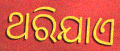
ଥରିଯାଏ